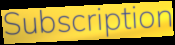
Subscription